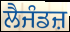
ਲੈਜੰਡਜ਼